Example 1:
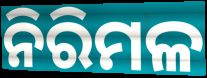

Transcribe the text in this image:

ନିରିମଳ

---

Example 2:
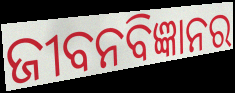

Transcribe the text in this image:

ଜୀବନବିଜ୍ଞାନର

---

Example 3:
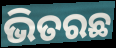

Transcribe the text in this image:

ଭିତରଛ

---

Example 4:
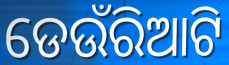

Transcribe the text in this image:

ଡେଉଁରିଆଟି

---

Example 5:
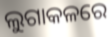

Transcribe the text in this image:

ଲୁଗାକଳରେ